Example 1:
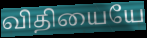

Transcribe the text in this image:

விதியையே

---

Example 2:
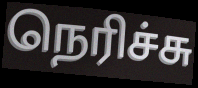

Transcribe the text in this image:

நெரிச்சு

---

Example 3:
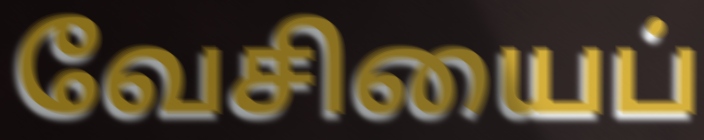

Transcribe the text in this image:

வேசியைப்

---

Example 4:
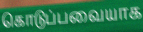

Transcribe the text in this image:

கொடுப்பவையாக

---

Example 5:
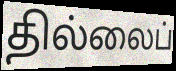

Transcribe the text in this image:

தில்லைப்